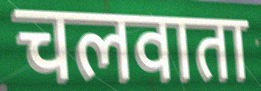
चलवाता